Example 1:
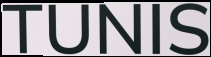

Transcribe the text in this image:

TUNIS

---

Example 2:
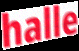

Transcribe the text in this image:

halle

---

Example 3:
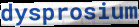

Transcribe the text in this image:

dysprosium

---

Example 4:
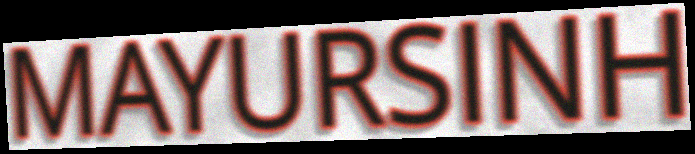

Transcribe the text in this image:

MAYURSINH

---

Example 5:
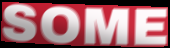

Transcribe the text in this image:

SOME